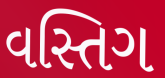
વસ્તિગ